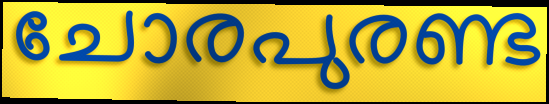
ചോരപുരണ്ട